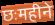
छःमहीने